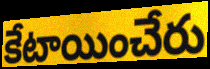
కేటాయించేరు